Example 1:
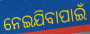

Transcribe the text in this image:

ନେଇଯିବାପାଇଁ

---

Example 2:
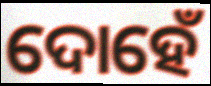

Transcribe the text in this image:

ଦୋହେଁ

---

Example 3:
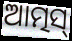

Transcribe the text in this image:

ଆତ୍ମସ୍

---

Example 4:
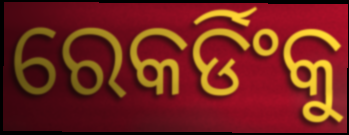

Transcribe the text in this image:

ରେକର୍ଡିଂକୁ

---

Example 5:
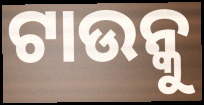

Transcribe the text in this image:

ଟାଉନ୍କୁ